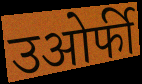
उओर्फी